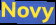
Novy